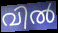
വിൽ